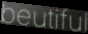
beutiful